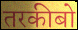
तरकीबो